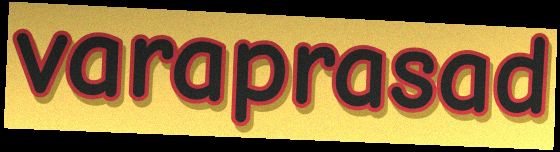
varaprasad